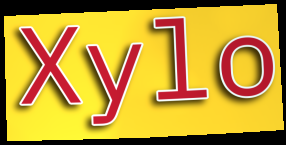
Xylo